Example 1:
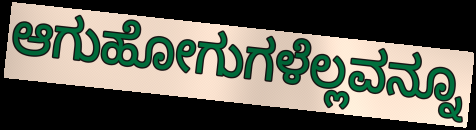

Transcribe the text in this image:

ಆಗುಹೋಗುಗಳೆಲ್ಲವನ್ನೂ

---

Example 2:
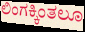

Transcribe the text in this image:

ಲಿಂಗಕ್ಕಿಂತಲೂ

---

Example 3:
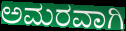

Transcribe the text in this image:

ಅಮರವಾಗಿ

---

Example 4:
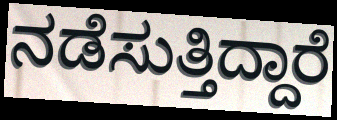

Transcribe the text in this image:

ನಡೆಸುತ್ತಿದ್ದಾರೆ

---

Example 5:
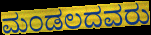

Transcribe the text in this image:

ಮಂಡಲದವರು